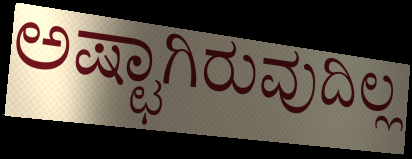
ಅಷ್ಟಾಗಿರುವುದಿಲ್ಲ